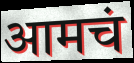
आमचं